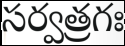
సర్వత్రగః